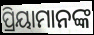
ପ୍ରିୟାମାନଙ୍କ